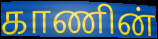
காணின்